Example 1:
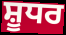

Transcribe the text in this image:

ਸ਼ੂਧਰ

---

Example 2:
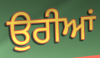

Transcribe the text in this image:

ਉਰੀਆਂ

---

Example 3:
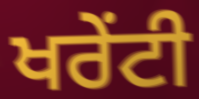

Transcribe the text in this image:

ਖਰੇਂਟੀ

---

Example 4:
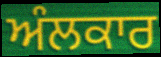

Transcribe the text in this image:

ਅੰਲਕਾਰ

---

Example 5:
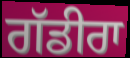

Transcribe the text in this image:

ਗੱਡੀਰਾ